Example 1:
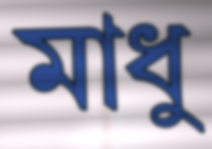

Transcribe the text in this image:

মাধু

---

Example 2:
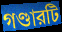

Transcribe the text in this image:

গণ্ডারটি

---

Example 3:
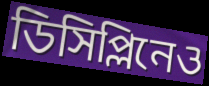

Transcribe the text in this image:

ডিসিপ্লিনেও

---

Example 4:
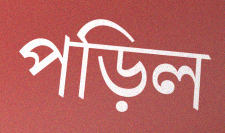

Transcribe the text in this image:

পড়িল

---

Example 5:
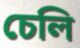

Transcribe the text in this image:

চেলি